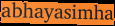
abhayasimha